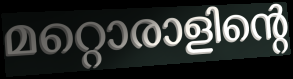
മറ്റൊരാളിന്റെ